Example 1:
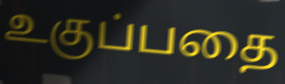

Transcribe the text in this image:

உகுப்பதை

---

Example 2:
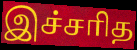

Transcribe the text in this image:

இச்சரித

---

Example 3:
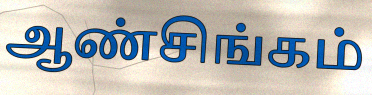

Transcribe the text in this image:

ஆண்சிங்கம்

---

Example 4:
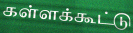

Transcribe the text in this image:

கள்ளக்கூட்டு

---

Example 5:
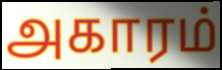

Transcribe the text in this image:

அகாரம்